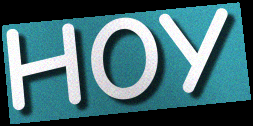
HOY